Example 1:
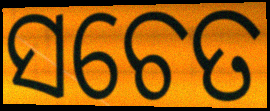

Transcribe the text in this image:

ସଚେତ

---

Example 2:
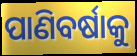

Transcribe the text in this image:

ପାଣିବର୍ଷାକୁ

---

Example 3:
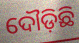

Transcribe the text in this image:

ଦୌଡ଼ିଛି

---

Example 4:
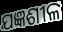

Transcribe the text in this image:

ଯଜ୍ଞଶୀଳ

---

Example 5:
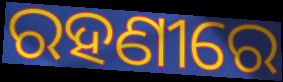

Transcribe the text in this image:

ରହଣୀରେ